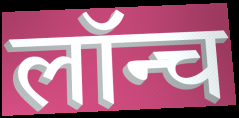
लॉन्‍च